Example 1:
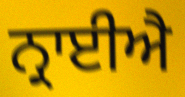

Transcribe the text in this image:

ਨ੍ਰਾਈਐ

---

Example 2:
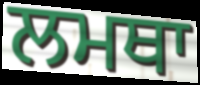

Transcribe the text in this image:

ਲਮਥਾ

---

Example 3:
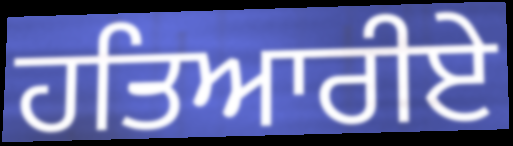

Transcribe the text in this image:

ਹਤਿਆਰੀਏ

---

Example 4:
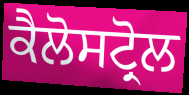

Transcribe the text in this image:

ਕੈਲੋਸਟ੍ਰੋਲ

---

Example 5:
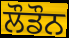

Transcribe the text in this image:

ਲੌਡੌਨ